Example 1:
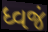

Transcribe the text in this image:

ધ્વજં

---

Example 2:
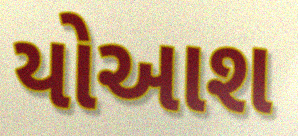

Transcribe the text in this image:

યોઆશ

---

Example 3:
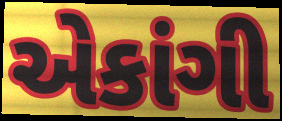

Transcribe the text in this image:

એકાંગી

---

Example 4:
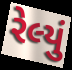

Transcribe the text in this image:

રેલ્યું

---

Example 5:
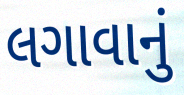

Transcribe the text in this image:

લગાવાનું